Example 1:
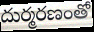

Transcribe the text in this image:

దుర్మరణంతో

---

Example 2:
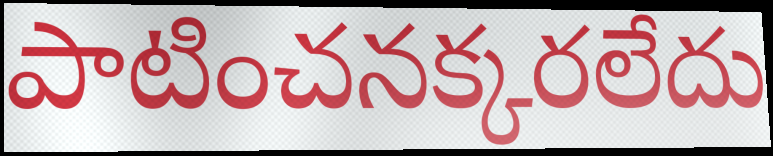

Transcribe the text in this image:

పాటించనక్కరలేదు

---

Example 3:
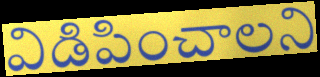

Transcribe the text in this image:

విడిపించాలని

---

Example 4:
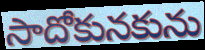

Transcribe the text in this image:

సాదోకునకును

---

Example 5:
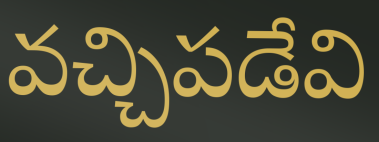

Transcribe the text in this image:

వచ్చిపడేవి